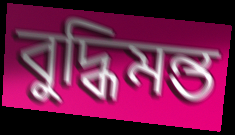
বুদ্ধিমন্ত